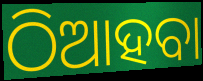
ଠିଆହବା